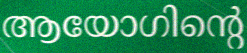
ആയോഗിന്റെ